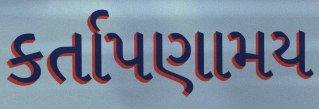
કર્તાપણામય